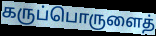
கருப்பொருளைத்